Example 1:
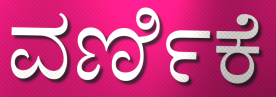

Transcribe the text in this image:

ವರ್ಣಿಕೆ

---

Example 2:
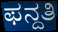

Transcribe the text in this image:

ಫನ್ದತಿ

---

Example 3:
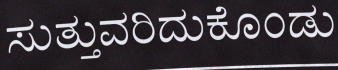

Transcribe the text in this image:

ಸುತ್ತುವರಿದುಕೊಂಡು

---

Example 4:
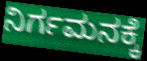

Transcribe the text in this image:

ನಿರ್ಗಮನಕ್ಕೆ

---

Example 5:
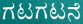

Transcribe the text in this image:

ಗಟಗಟನೆ